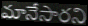
మానేసారని